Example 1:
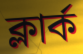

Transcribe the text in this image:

ক্লাৰ্ক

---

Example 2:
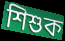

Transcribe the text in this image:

শিশুক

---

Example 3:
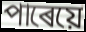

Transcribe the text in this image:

পাৰেয়ে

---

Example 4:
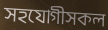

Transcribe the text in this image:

সহযোগীসকল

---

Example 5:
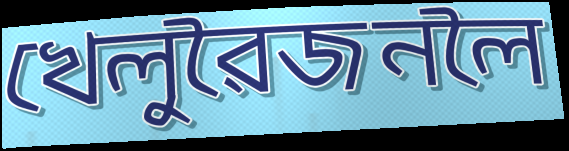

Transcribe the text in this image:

খেলুৱৈজনলৈ